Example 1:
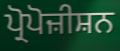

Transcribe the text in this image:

ਪ੍ਰੋਪੋਜ਼ੀਸ਼ਨ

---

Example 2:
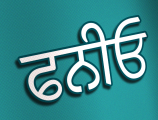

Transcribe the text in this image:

ਫਨੀਓ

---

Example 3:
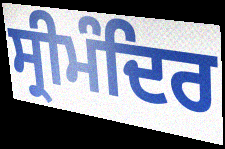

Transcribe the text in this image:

ਸ੍ਰੀਮੰਦਿਰ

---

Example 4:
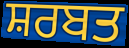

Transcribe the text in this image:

ਸ਼ਰਬਤ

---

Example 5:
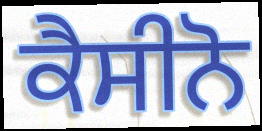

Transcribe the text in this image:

ਕੈਸੀਨੋ